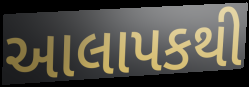
આલાપકથી